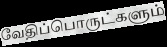
வேதிப்பொருட்களும்